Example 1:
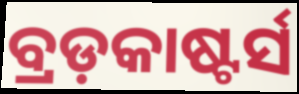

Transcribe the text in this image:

ବ୍ରଡ଼କାଷ୍ଟର୍ସ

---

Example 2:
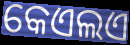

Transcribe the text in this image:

କେଏଲଏ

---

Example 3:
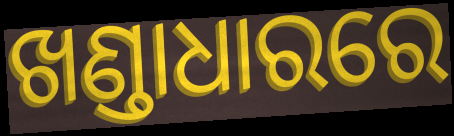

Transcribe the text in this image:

ଖଣ୍ଡାଧାରରେ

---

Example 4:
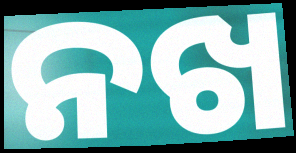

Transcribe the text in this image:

ନଖ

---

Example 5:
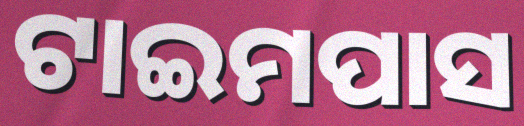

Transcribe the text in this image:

ଟାଇମପାସ